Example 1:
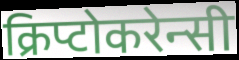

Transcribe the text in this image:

क्रिप्टोकरेन्सी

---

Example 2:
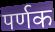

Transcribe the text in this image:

पर्णक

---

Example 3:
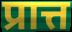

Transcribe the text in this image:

प्रात्त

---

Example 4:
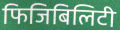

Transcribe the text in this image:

फिजिबिलिटी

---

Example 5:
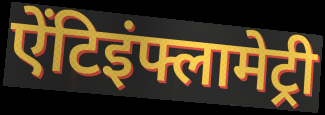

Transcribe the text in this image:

ऐंटिइंफ्लामेट्री